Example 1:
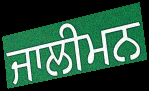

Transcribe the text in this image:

ਜਾਲੀਮਨ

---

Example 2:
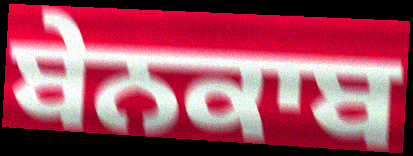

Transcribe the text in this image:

ਬੇਨਕਾਬ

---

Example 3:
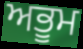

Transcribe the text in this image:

ਅਭੂਮ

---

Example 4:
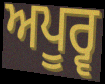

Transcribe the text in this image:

ਅਪੂਰ੍ਵ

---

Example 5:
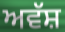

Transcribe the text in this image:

ਅਵੱਸ਼